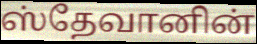
ஸ்தேவானின்